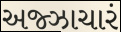
અજ્ઝાચારં